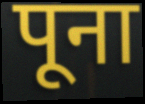
पूना